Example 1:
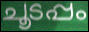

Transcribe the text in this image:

ചൂടപ്പം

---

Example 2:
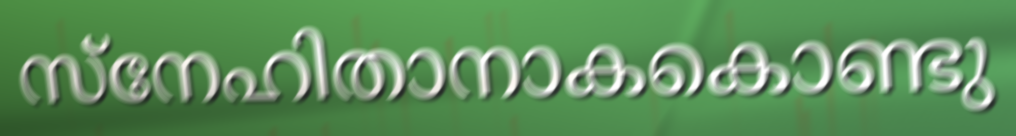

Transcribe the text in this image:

സ്നേഹിതാനാകകൊണ്ടു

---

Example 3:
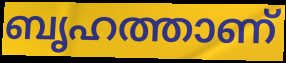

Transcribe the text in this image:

ബൃഹത്താണ്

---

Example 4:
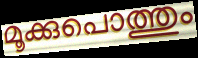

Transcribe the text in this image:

മൂക്കുപൊത്തും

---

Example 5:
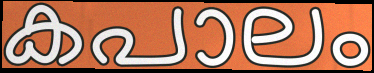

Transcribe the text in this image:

കപാലം